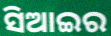
ସିଆଇର